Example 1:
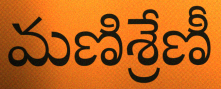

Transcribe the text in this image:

మణిశ్రేణీ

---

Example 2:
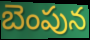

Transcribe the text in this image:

బెంపున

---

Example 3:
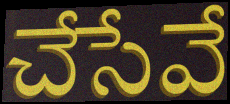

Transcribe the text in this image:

చేసేవే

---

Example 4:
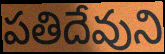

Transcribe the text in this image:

పతిదేవుని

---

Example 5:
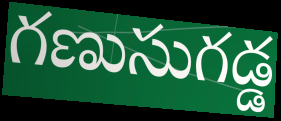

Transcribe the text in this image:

గణుసుగడ్డ